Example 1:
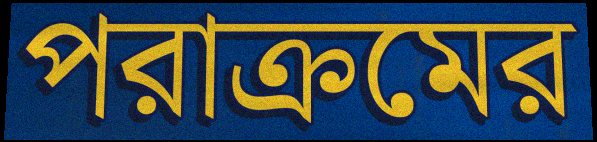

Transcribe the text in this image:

পরাক্রমের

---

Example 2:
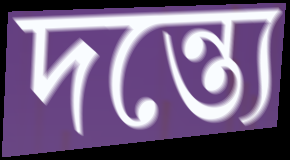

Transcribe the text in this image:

দন্ত্যে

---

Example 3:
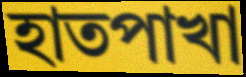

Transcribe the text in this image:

হাতপাখা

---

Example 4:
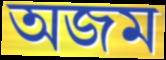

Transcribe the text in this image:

অজম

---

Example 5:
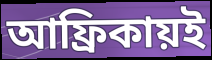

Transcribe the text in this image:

আফ্রিকায়ই